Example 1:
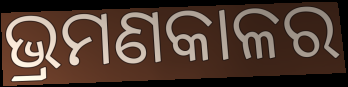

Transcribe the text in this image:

ଭ୍ରମଣକାଳର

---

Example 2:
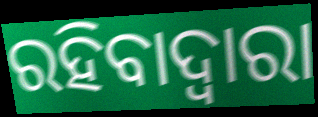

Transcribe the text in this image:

ରହିବାଦ୍ଵାରା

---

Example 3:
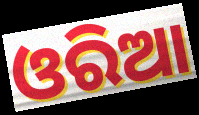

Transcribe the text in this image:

ଓରିଆ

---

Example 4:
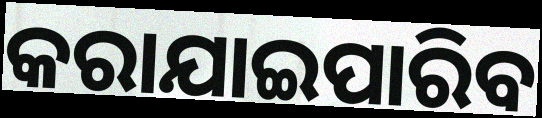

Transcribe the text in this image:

କରାଯାଇପାରିବ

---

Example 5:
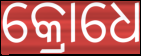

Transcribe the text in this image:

କ୍ରୋଧେ